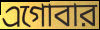
এগোবার